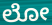
ಲೋ